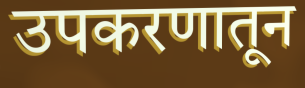
उपकरणातून